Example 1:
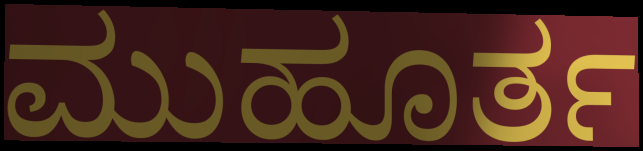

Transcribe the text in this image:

ಮುಹೂರ್ತ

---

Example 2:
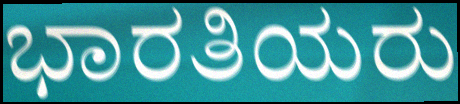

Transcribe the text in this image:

ಭಾರತಿಯರು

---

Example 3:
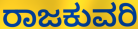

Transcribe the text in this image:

ರಾಜಕುವರಿ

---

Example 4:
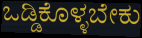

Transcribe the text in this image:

ಒಡ್ಡಿಕೊಳ್ಳಬೇಕು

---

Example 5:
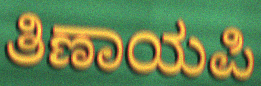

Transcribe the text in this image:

ತಿಣಾಯಪಿ